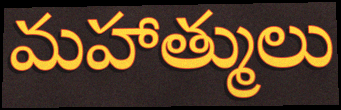
మహాత్ములు